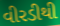
વીરડીથી